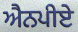
ਐਨਪੀਏ